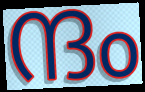
ന്ദം